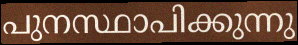
പുനസ്ഥാപിക്കുന്നു